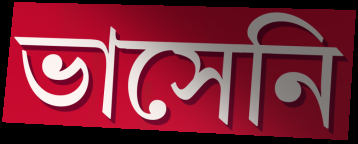
ভাসেনি